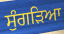
ਸੁੰਗੜਿਆ